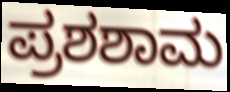
ಪ್ರಶಶಾಮ